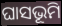
ଘାସଭୂମି